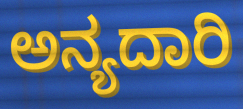
ಅನ್ಯದಾರಿ